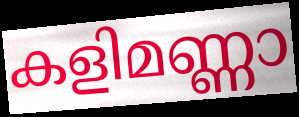
കളിമണ്ണാ